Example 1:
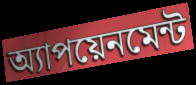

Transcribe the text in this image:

অ্যাপয়েনমেন্ট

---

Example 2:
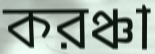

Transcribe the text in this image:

করঞ্চা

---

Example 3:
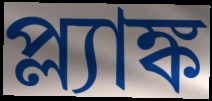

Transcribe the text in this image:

প্ল্যাঙ্ক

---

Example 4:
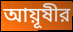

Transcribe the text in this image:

আয়ূষীর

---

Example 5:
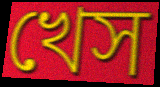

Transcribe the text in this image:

খেস